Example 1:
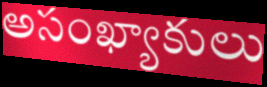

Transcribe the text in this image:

అసంఖ్యాకులు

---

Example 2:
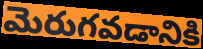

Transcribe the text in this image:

మెరుగవడానికి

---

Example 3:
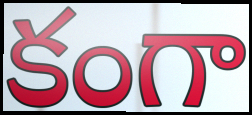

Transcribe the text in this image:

కంగా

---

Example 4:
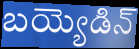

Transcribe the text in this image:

బయ్యెడిన్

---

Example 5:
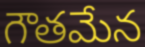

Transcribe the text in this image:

గౌతమేన